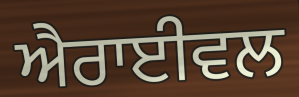
ਐਰਾਈਵਲ